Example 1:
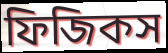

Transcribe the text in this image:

ফিজিকস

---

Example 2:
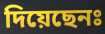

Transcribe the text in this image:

দিয়েছেনঃ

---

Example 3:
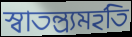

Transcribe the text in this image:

স্বাতন্ত্র্যমর্হতি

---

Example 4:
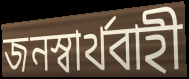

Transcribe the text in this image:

জনস্বার্থবাহী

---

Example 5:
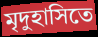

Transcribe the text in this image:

মৃদুহাসিতে